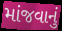
માંજવાનું